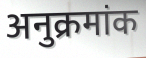
अनुक्रमांक